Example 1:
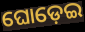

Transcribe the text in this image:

ଘୋଡ଼େଇ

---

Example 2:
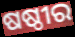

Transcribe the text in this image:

ଷଷ୍ଠୀର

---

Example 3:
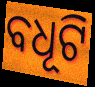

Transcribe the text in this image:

ବଧୂଟି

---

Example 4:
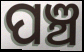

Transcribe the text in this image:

ପଞ୍ଚ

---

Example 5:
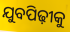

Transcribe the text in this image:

ଯୁବପିଢ଼ୀକୁ